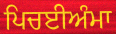
ਪਿਚਈਅੰਮਾ